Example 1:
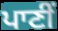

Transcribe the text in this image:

ਪਾਣੀਂ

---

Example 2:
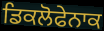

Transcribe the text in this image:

ਡਿਕਲੋਫੇਨਾਕ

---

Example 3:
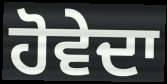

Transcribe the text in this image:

ਹੋਵੇਦਾ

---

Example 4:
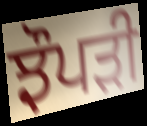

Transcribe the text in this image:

ਝੌਪੜੀ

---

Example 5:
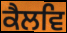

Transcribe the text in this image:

ਕੈਲਵਿ